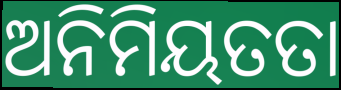
ଅନିମିୟତତା